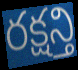
రక్షన్తి